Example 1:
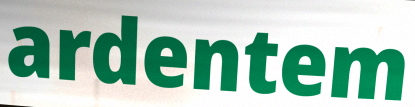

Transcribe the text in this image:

ardentem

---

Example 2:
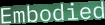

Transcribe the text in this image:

Embodied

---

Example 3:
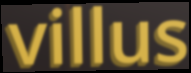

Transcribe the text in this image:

villus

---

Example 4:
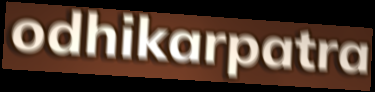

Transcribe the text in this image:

odhikarpatra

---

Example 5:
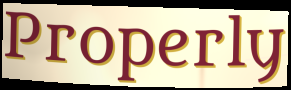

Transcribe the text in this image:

Properly